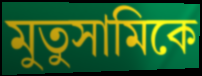
মুতুসামিকে